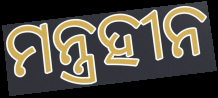
ମନ୍ତ୍ରହୀନ